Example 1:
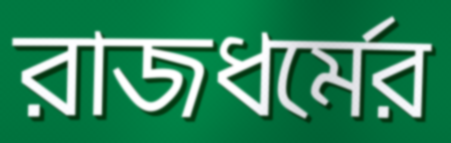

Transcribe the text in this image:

রাজধর্মের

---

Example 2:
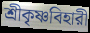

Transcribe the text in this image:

শ্রীকৃষ্ণবিহারী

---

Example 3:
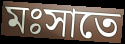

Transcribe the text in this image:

মঃসাতে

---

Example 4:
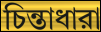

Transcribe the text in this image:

চিন্তাধারা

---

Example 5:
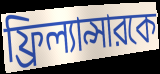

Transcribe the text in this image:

ফ্রিল্যান্সারকে